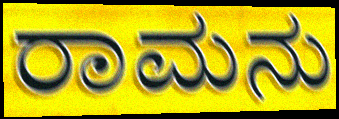
ರಾಮನು